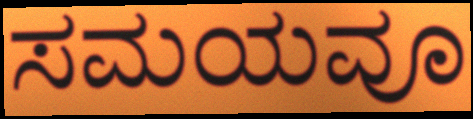
ಸಮಯವೂ